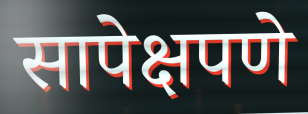
सापेक्षपणे